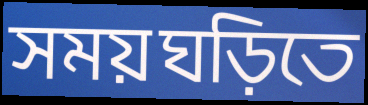
সময়ঘড়িতে